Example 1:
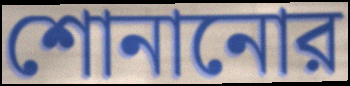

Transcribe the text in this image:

শোনানোর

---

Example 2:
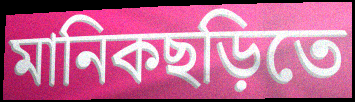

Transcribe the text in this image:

মানিকছড়িতে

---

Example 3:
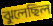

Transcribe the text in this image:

ঝুলেছিল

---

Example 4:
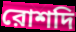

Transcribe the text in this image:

রোশদি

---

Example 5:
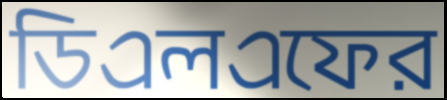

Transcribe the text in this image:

ডিএলএফের